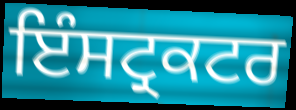
ਇੰਸਟ੍ਰਕਟਰ